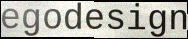
egodesign